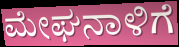
ಮೇಘನಾಳಿಗೆ